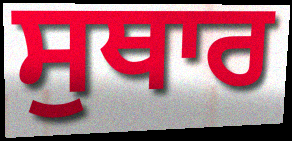
ਸੁਥਾਰ